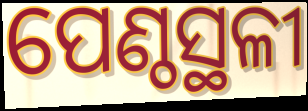
ପେଣ୍ଠସ୍ଥଳୀ